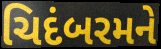
ચિદંબરમને